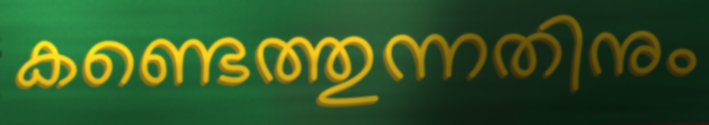
കണ്ടെത്തുന്നതിനും